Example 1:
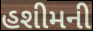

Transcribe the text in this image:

હશીમની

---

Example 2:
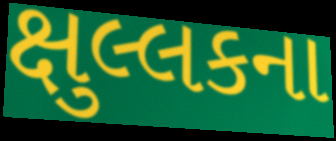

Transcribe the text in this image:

ક્ષુલ્લકના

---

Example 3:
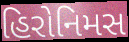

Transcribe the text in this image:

હિરોનિમસ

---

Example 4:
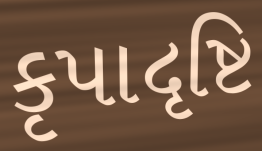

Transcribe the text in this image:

કૃપાદૃષ્ટિ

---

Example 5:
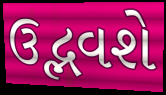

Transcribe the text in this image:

ઉદ્ભવશે